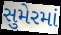
સુમેરમાં